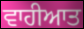
ਵਾਹੀਆਤ